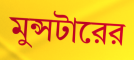
মুন্সটারের